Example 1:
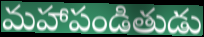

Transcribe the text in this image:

మహాపండితుడు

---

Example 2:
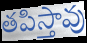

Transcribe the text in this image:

తపిస్తావు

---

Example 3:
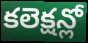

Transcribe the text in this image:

కలెక్షన్లో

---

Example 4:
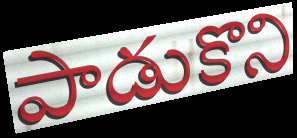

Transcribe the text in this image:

పాడుకొని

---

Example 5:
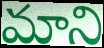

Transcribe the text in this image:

మాని